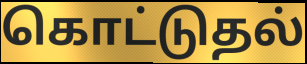
கொட்டுதல்